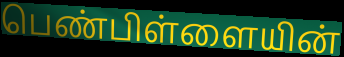
பெண்பிள்ளையின்